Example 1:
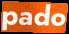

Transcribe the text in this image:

pado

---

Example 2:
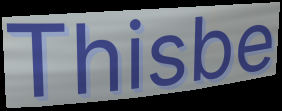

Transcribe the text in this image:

Thisbe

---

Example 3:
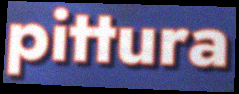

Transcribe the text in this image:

pittura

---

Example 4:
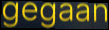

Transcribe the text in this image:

gegaan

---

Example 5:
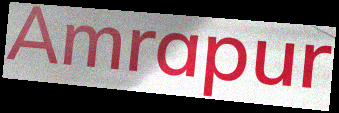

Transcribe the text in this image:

Amrapur